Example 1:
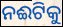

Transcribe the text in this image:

ନଈଟିକୁ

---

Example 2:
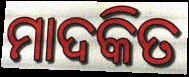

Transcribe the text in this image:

ମାଦକିତ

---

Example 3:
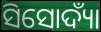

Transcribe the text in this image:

ସିସୋଦ୍ୟାଁ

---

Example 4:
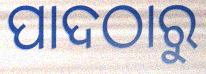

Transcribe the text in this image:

ପାଦଠାରୁ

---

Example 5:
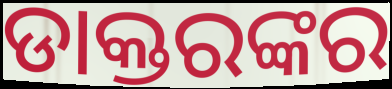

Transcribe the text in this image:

ଡାକ୍ତରଙ୍କର